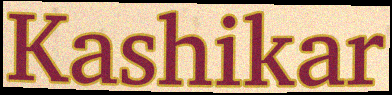
Kashikar